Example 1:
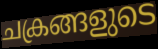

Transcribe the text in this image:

ചക്രങ്ങളുടെ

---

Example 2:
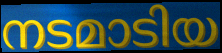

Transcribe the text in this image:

നടമാടിയ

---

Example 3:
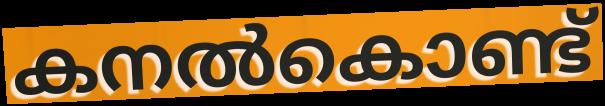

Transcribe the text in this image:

കനൽകൊണ്ട്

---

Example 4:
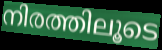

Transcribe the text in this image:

നിരത്തിലൂടെ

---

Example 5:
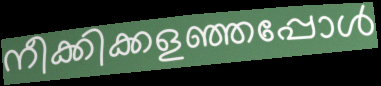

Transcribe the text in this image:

നീക്കിക്കളഞ്ഞപ്പോൾ